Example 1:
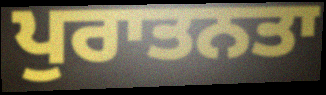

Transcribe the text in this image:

ਪੁਰਾਤਨਤਾ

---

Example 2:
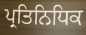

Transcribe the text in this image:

ਪ੍ਰਤਿਨਿਧਿਕ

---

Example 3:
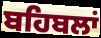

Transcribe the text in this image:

ਬਹਿਬਲਾਂ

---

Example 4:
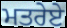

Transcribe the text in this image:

ਮਤਰੇਏ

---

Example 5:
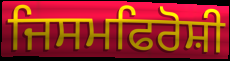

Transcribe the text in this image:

ਜਿਸਮਫਿਰੋਸ਼ੀ